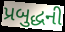
પ્રબુદ્ધની